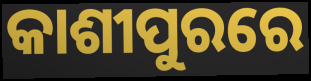
କାଶୀପୁରରେ